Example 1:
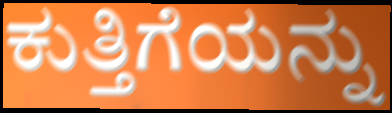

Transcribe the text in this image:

ಕುತ್ತಿಗೆಯನ್ನು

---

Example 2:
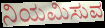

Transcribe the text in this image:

ನಿಯಮಿಸುವ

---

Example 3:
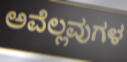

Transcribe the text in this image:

ಅವೆಲ್ಲವುಗಳ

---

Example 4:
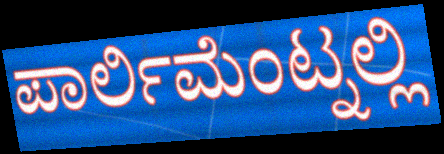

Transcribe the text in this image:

ಪಾರ್ಲಿಮೆಂಟ್ನಲ್ಲಿ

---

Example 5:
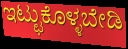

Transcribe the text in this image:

ಇಟ್ಟುಕೊಳ್ಳಬೇಡಿ